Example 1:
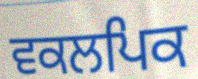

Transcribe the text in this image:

ਵਕਲਪਿਕ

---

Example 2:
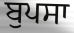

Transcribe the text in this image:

ਬੁਪਸਾ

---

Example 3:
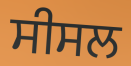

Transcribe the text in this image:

ਸੀਸਲ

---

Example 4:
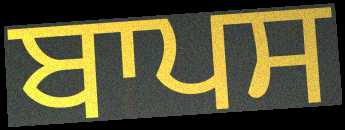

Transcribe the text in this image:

ਬਾਪਸ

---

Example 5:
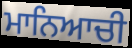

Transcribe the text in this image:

ਮਾਨਿਆਚੀ